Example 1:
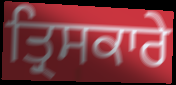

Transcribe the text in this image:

ਤ੍ਰਿਸਕਾਰੇ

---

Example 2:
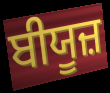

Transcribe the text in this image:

ਬੀਯੂਜ਼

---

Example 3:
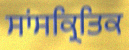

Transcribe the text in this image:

ਸਾਂਸਕ੍ਰਿਤਿਕ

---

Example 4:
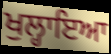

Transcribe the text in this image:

ਖੁਲ੍ਹਾਇਆ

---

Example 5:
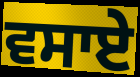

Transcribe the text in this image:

ਵਸਾਏ